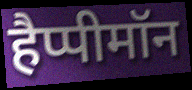
हैप्पीमॉन